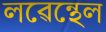
লৱেন্থেল